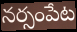
నర్సంపేట